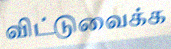
விட்டுவைக்க